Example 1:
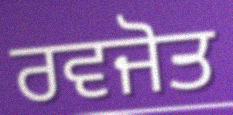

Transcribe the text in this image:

ਰਵਜੋਤ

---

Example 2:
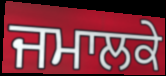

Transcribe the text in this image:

ਜਮਾਲਕੇ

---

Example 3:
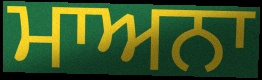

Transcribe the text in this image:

ਮਾਅਨਾ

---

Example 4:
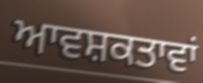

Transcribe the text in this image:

ਆਵਸ਼ਕਤਾਵਾਂ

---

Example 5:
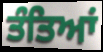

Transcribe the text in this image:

ਤੰਤਿਆਂ